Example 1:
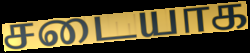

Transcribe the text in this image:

சடையாக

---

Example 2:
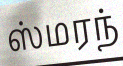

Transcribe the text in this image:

ஸ்மரந்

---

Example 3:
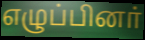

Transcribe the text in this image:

எழுப்பினர்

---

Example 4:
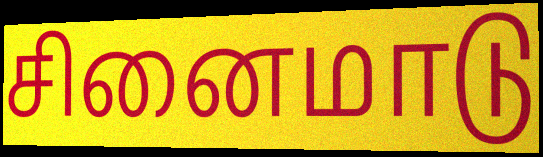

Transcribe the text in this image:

சினைமாடு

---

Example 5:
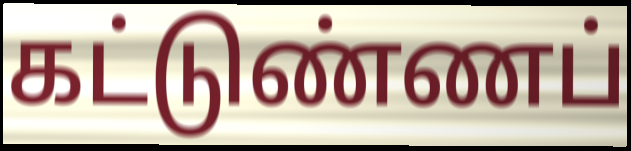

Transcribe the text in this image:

கட்டுண்ணப்